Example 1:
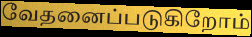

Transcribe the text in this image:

வேதனைப்படுகிறோம்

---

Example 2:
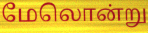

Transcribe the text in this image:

மேலொன்று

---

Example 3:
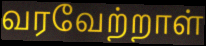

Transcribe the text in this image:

வரவேற்றாள்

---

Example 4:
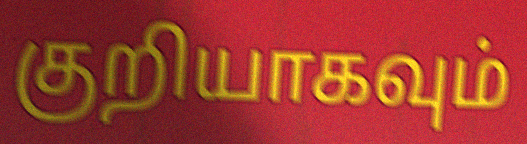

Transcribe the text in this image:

குறியாகவும்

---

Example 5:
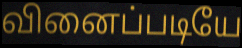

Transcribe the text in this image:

வினைப்படியே